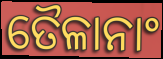
ତୈଳାନାଂ